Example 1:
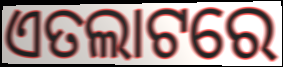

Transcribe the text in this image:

ଏତଲାଟରେ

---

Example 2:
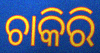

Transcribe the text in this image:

ଚାକିରି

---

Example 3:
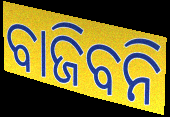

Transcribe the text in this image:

ବାଜିବନି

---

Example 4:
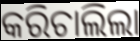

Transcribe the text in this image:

କରିଚାଲିଲା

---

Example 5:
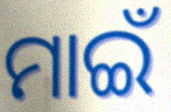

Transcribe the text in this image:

ମାଇଁ